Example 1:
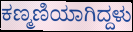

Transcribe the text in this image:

ಕಣ್ಮಣಿಯಾಗಿದ್ದಳು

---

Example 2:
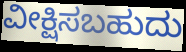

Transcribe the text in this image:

ವೀಕ್ಷಿಸಬಹುದು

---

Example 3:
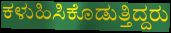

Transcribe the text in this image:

ಕಳುಹಿಸಿಕೊಡುತ್ತಿದ್ದರು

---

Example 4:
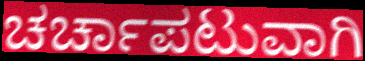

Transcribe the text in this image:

ಚರ್ಚಾಪಟುವಾಗಿ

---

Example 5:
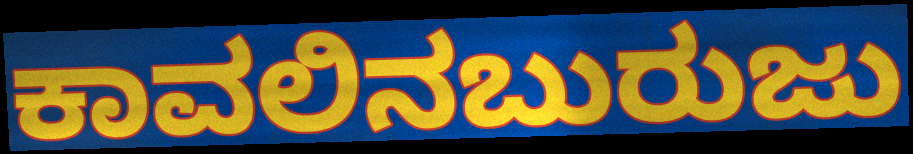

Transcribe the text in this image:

ಕಾವಲಿನಬುರುಜು